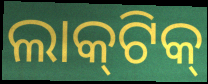
ଲାକ୍‌ଟିକ୍